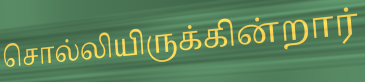
சொல்லியிருக்கின்றார்